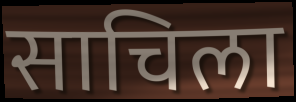
साचिला